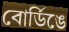
বোর্ডিঙে